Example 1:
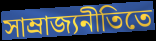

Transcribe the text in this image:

সাম্রাজ্যনীতিতে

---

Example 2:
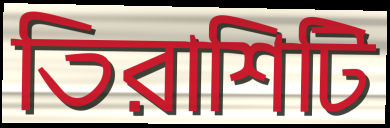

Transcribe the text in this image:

তিরাশিটি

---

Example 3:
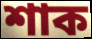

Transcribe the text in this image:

শাক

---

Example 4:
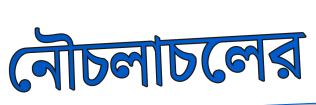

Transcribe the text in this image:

নৌচলাচলের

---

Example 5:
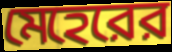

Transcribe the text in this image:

মেহেরের